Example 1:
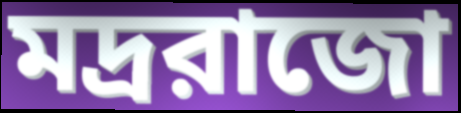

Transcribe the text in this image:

মদ্ররাজো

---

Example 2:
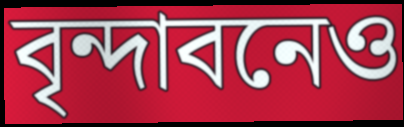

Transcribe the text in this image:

বৃন্দাবনেও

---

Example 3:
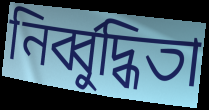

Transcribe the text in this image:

নির্ব্বুদ্ধিতা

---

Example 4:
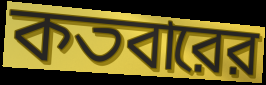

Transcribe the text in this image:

কতবারের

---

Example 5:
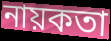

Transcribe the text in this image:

নায়কতা